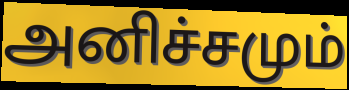
அனிச்சமும்